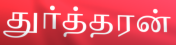
துர்த்தரன்